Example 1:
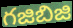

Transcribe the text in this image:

గజిబిజి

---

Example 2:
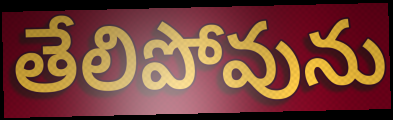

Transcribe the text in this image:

తేలిపోవును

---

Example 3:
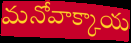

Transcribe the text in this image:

మనోవాక్కాయ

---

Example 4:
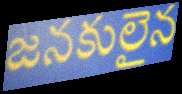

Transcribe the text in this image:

జనకులైన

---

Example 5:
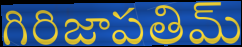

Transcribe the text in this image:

గిరిజాపతిమ్